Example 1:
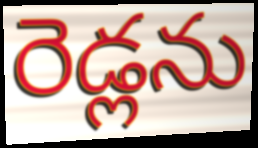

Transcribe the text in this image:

రెడ్లను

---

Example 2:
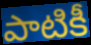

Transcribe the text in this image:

పాటికీ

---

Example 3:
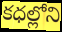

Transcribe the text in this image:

కధల్లోని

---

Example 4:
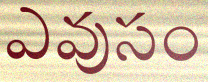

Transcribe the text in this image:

ఎవుసం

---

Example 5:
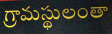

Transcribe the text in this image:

గ్రామస్థులంతా